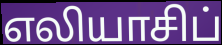
எலியாசிப்